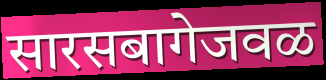
सारसबागेजवळ